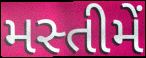
મસ્તીમેં